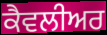
ਕੈਵਲੀਅਰ